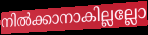
നിൽക്കാനാകില്ലല്ലോ